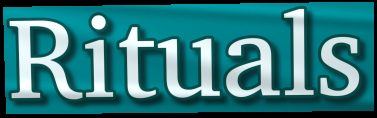
Rituals